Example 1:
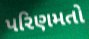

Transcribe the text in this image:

પરિણમતો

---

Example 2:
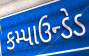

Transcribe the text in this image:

કમ્પાઉન્ડેડ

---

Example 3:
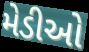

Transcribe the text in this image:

મેડીઓ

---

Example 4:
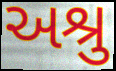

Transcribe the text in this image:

અશ્રુ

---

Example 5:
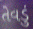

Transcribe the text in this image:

તેવડું